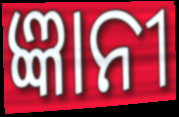
ଜ୍ଞାନୀ